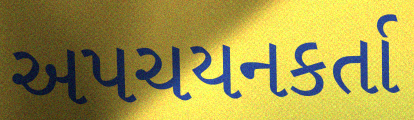
અપચયનકર્તા